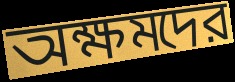
অক্ষমদের